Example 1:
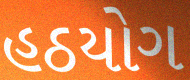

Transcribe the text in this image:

હઠયોગ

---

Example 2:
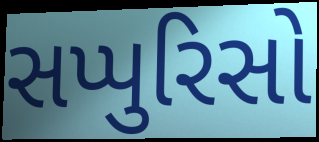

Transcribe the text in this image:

સપ્પુરિસો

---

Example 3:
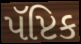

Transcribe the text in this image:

પૅપ્ટિક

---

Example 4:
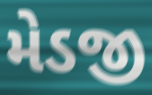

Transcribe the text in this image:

મેડજી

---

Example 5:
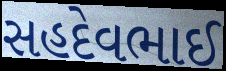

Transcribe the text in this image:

સહદેવભાઈ